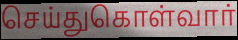
செய்துகொள்வார்